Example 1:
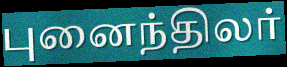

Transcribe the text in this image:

புனைந்திலர்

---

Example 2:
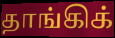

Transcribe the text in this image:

தாங்கிக்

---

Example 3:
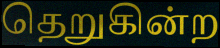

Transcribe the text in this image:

தெறுகின்ற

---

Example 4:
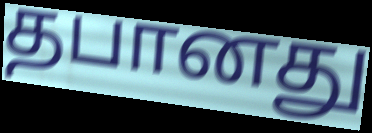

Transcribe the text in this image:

தபானது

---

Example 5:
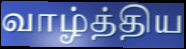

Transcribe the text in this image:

வாழ்த்திய